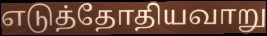
எடுத்தோதியவாறு